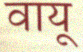
वायू